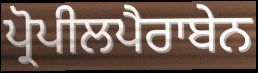
ਪ੍ਰੋਪੀਲਪੈਰਾਬੇਨ